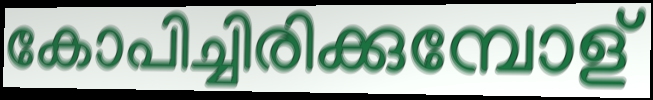
കോപിച്ചിരിക്കുമ്പോള്